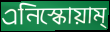
এনিস্কোয়াম্